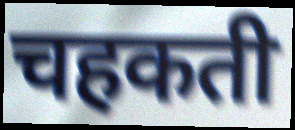
चहकती